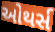
ઓથર્સ